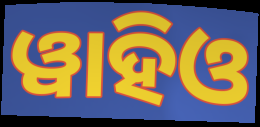
ୱାହିଓ